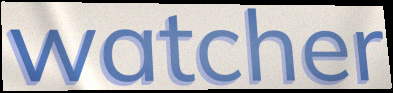
watcher